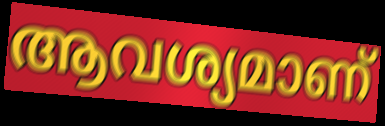
ആവശ്യമാണ്